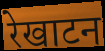
रेखाटन